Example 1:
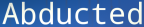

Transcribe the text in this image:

Abducted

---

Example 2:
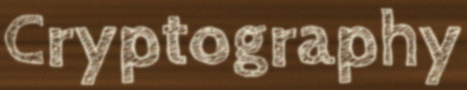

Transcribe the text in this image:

Cryptography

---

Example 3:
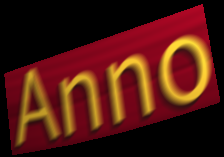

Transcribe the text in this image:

Anno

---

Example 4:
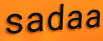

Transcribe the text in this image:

sadaa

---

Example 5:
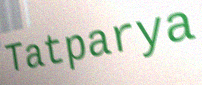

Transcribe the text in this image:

Tatparya